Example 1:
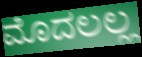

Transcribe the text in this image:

ಮೊದಲಲ್ಲ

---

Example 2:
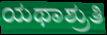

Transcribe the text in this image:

ಯಥಾಶ್ರುತಿ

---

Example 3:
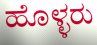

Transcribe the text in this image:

ಹೊಳ್ಳರು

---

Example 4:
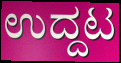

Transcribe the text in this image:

ಉದ್ದಟ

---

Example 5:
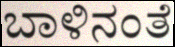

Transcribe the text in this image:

ಬಾಳಿನಂತೆ